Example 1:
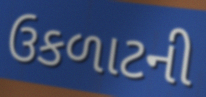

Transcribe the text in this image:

ઉકળાટની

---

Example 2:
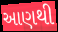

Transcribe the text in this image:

આણથી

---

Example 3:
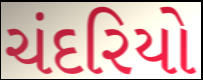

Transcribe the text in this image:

ચંદરિયો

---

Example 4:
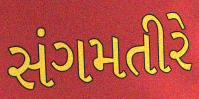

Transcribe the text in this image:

સંગમતીરે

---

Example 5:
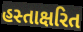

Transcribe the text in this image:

હસ્તાક્ષરિત